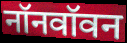
नॉनवॉवन